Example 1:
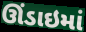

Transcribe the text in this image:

ઊંડાઇમાં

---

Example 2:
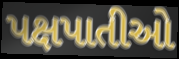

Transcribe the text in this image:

પક્ષપાતીઓ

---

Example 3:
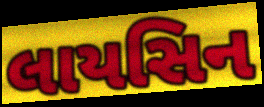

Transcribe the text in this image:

લાયસિન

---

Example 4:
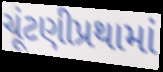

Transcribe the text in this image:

ચૂંટણીપ્રથામાં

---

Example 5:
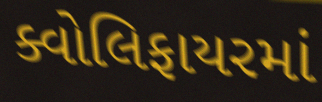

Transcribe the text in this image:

ક્વોલિફાયરમાં